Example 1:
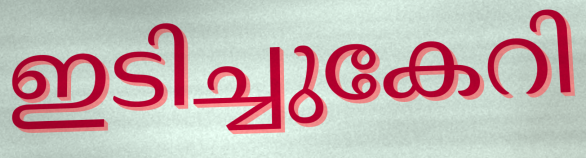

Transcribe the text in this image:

ഇടിച്ചുകേറി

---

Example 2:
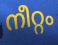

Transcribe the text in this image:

നീറ്റം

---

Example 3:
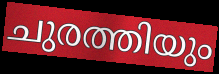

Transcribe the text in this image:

ചുരത്തിയും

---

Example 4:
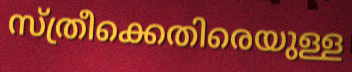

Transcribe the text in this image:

സ്ത്രീക്കെതിരെയുള്ള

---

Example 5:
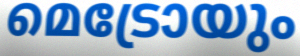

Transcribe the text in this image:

മെട്രോയും